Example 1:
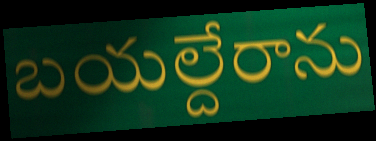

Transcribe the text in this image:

బయల్దేరాను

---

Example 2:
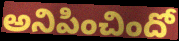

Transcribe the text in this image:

అనిపించిందో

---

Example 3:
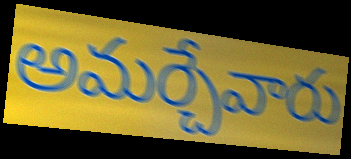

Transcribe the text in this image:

అమర్చేవారు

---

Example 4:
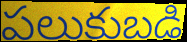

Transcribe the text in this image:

పలుకుబడి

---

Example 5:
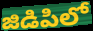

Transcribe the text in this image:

జిడిపిలో